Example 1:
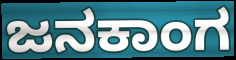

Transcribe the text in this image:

ಜನಕಾಂಗ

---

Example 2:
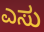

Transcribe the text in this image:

ಎಸು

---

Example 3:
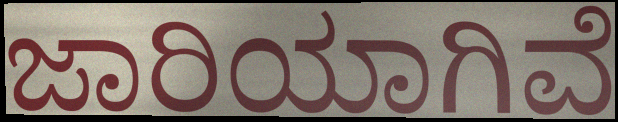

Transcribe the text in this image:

ಜಾರಿಯಾಗಿವೆ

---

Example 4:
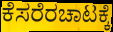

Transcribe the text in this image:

ಕೆಸರೆರಚಾಟಕ್ಕೆ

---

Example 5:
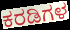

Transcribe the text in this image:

ಕರಡಿಗಳ